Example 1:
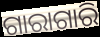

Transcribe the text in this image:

ଗାରାଗାରି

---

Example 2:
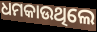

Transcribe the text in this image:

ଧମକାଉଥିଲେ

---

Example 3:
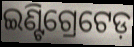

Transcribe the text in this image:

ଇଣ୍ଟିଗ୍ରେଟେଡ଼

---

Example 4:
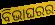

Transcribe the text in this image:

ବିଭାଘରର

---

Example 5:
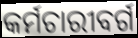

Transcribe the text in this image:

କର୍ମଚାରୀବର୍ଗ